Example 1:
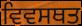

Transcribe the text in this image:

ਵਿਵਸਥਤ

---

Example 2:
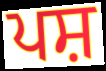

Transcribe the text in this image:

ਪਸ਼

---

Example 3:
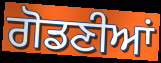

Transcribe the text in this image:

ਗੋਡਣੀਆਂ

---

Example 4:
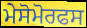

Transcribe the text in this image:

ਮੇਸੋਮੋਰਫਸ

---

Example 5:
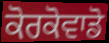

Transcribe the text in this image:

ਕੋਰਕੋਵਾਡੋ